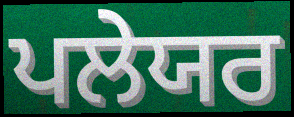
ਪਲੇਯਰ